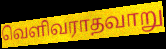
வெளிவராதவாறு